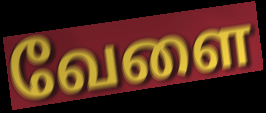
வேளை